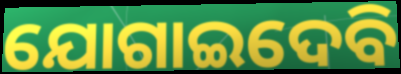
ଯୋଗାଇଦେବି